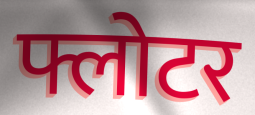
फ्लोटर